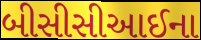
બીસીસીઆઈના